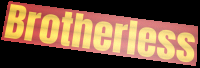
Brotherless